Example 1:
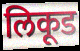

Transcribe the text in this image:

लिकूड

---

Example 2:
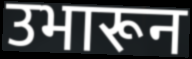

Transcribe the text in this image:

उभारून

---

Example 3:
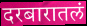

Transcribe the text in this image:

दरबारातलं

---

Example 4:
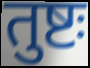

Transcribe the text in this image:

तुष्टः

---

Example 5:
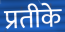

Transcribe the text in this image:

प्रतीके